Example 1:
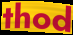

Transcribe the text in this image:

thod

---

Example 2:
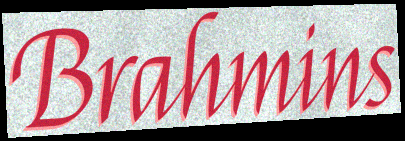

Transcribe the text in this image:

Brahmins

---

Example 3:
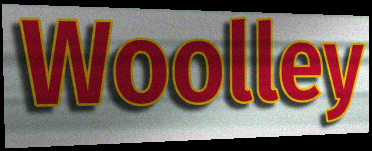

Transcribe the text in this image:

Woolley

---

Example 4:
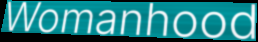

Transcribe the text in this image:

Womanhood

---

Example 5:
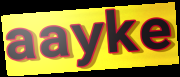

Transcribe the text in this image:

aayke